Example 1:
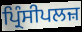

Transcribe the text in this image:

ਪ੍ਰਿੰਸੀਪਲਜ਼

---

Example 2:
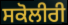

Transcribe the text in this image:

ਸਕੋਲੀਰੀ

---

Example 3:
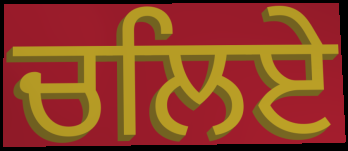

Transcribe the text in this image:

ਚਲਿਏ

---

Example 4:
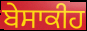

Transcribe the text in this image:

ਬੇਸਾਕੀਹ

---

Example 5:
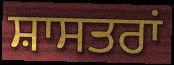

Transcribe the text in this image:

ਸ਼ਾਸਤਰਾਂ